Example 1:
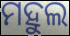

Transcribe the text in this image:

ମହୁଲ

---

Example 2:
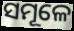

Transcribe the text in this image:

ସମୂଳେ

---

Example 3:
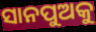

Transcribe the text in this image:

ସାନପୁଅକୁ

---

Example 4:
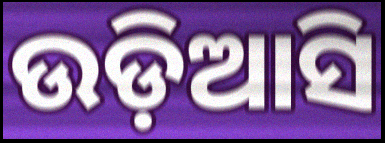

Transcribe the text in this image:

ଉଡ଼ିଆସି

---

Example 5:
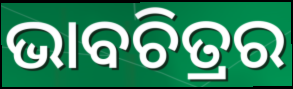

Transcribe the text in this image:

ଭାବଚିତ୍ରର